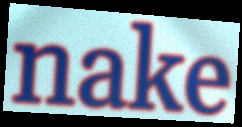
nake